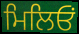
ਮਿਲਿਓਂ